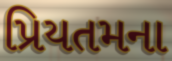
પ્રિયતમના